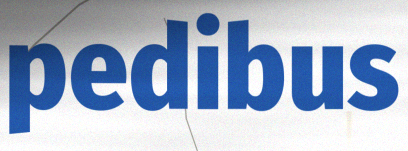
pedibus